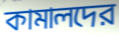
কামালদের